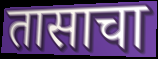
तासाचा